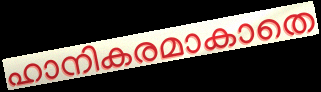
ഹാനികരമാകാതെ